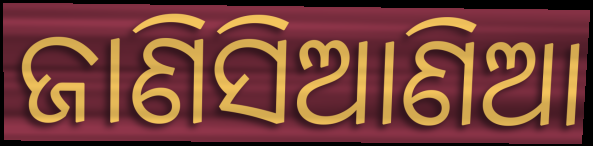
ଜାଣିସିଆଣିଆ